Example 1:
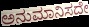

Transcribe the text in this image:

ಅನುಮಾನಿಸದೇ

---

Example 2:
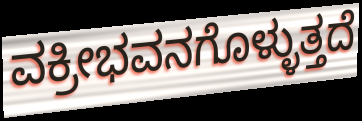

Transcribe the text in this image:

ವಕ್ರೀಭವನಗೊಳ್ಳುತ್ತದೆ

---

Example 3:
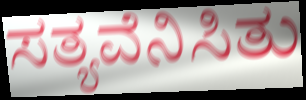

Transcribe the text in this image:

ಸತ್ಯವೆನಿಸಿತು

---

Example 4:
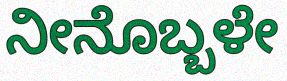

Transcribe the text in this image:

ನೀನೊಬ್ಬಳೇ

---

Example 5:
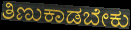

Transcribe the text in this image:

ತಿಣುಕಾಡಬೇಕು